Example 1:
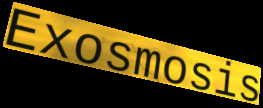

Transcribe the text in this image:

Exosmosis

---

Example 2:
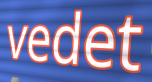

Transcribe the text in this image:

vedet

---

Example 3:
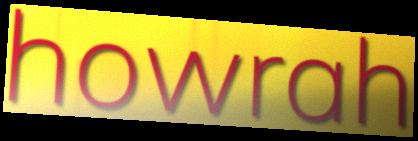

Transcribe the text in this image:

howrah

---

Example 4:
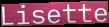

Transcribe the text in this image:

Lisette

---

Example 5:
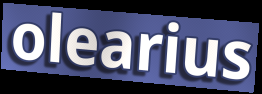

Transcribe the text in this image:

olearius